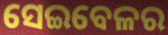
ସେଇବେଳର